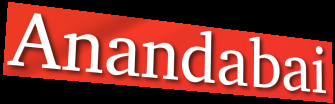
Anandabai